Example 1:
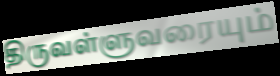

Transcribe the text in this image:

திருவள்ளுவரையும்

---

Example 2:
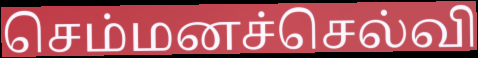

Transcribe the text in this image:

செம்மனச்செல்வி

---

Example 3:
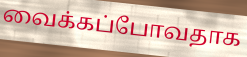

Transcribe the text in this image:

வைக்கப்போவதாக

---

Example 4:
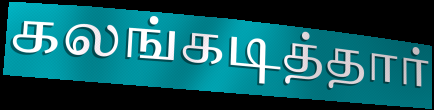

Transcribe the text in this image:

கலங்கடித்தார்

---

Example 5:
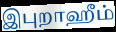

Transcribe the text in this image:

இபுறாஹீம்